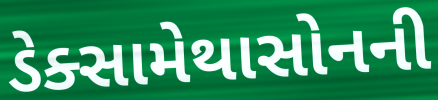
ડેક્સામેથાસોનની